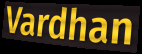
Vardhan